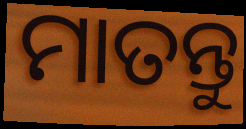
ମାତନ୍ତୁ